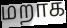
மறாக